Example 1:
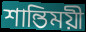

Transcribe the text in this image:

শান্তিময়ী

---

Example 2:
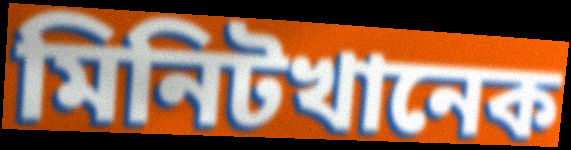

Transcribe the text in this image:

মিনিটখানেক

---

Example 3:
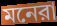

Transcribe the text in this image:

মনেরা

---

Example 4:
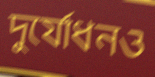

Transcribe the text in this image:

দুর্যোধনও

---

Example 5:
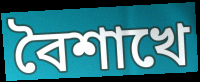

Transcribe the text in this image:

বৈশাখে